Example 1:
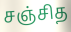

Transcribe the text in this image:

சஞ்சித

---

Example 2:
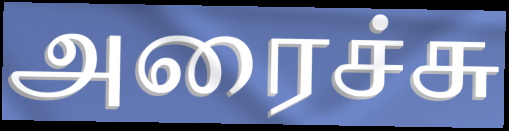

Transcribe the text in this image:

அரைச்சு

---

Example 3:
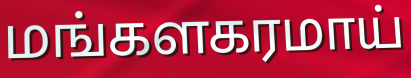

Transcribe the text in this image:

மங்களகரமாய்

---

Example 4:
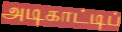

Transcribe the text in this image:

அடிகாட்டிப்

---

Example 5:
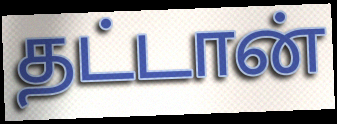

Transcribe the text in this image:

தட்டான்